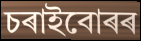
চৰাইবোৰৰ